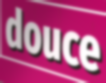
douce